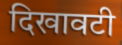
दिखावटी